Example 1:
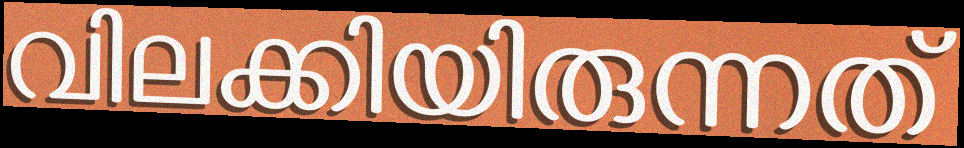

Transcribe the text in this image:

വിലക്കിയിരുന്നത്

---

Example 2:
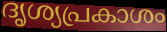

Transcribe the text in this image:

ദൃശ്യപ്രകാശം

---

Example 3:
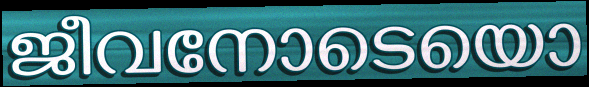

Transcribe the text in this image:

ജീവനോടെയൊ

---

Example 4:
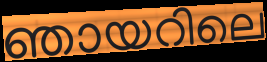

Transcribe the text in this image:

ഞായറിലെ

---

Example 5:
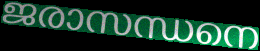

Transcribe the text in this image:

ജരാസന്ധനെ